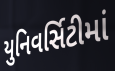
યુનિવર્સિટીમાં